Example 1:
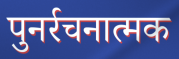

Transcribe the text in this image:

पुनर्रचनात्मक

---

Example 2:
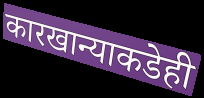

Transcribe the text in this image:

कारखान्याकडेही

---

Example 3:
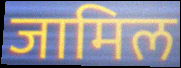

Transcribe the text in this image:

जामिल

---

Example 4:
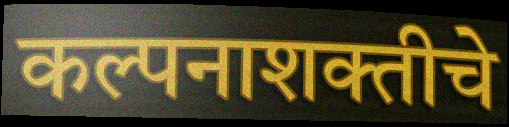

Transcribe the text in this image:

कल्पनाशक्तीचे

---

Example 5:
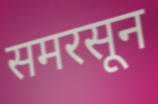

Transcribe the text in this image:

समरसून